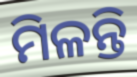
ମିଳନ୍ତି